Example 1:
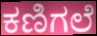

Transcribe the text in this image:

ಕಣಿಗಲೆ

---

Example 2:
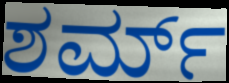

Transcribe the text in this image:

ಶರ್ಮ್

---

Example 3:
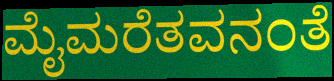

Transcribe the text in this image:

ಮೈಮರೆತವನಂತೆ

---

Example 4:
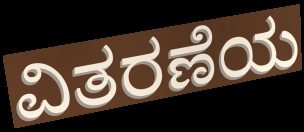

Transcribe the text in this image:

ವಿತರಣೆಯ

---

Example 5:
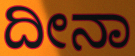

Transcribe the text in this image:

ದೀನಾ